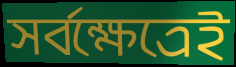
সর্বক্ষেত্রেই